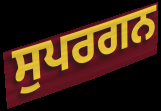
ਸੁਪਰਗਨ